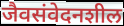
जैवसंवेदनशील